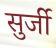
सुर्जी